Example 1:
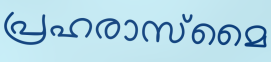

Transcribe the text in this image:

പ്രഹരാസ്മൈ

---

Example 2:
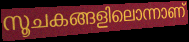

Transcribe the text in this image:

സൂചകങ്ങളിലൊന്നാണ്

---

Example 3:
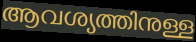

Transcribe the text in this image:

ആവശ്യത്തിനുള്ള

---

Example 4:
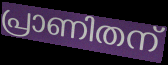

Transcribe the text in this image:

പ്രാണിതന്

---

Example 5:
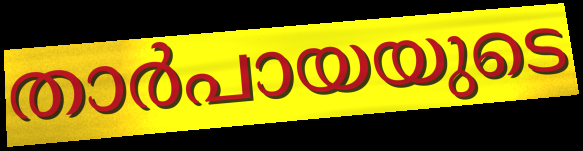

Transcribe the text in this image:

താർപായയുടെ